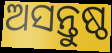
ଅସନ୍ତୁଷ୍ଠ